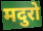
मदुरो